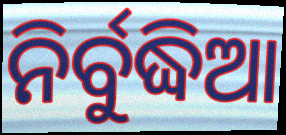
ନିର୍ବୁଦ୍ଧିଆ